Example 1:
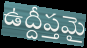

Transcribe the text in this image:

ఉద్దీప్తమై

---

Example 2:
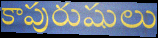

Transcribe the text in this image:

కాపురుషులు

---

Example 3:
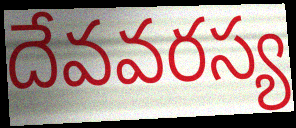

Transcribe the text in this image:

దేవవరస్య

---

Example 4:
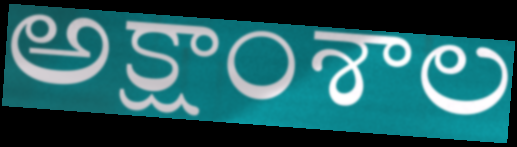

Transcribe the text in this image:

అక్షాంశాల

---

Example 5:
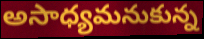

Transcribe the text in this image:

అసాధ్యమనుకున్న